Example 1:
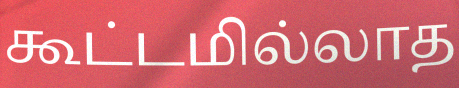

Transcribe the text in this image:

கூட்டமில்லாத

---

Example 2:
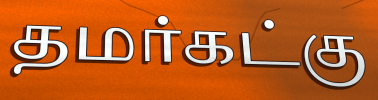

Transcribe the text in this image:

தமர்கட்கு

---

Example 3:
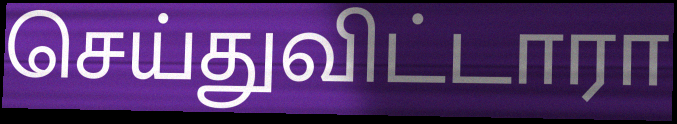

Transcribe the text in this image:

செய்துவிட்டாரா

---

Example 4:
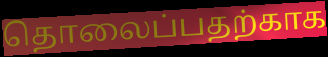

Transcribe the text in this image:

தொலைப்பதற்காக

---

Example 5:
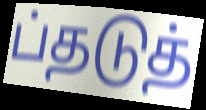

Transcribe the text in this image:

ப்தடுத்